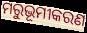
ମରୁଭୂମୀକରଣ